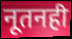
नूतनही